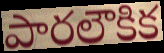
పారలౌకిక